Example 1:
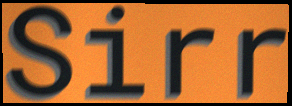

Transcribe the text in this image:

Sirr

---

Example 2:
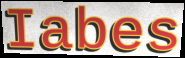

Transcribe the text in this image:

Iabes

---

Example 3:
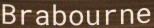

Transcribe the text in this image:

Brabourne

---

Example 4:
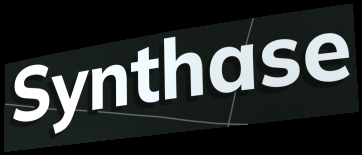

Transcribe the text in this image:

Synthase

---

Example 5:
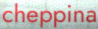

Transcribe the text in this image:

cheppina